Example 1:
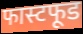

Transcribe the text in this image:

फास्टफूड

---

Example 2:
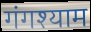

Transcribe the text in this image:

गंगश्याम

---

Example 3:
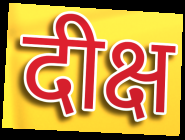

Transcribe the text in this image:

दीक्ष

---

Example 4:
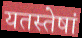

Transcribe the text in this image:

यतस्तेषां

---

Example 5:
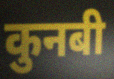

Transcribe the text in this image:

कुनबी